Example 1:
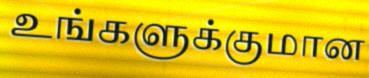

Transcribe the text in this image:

உங்களுக்குமான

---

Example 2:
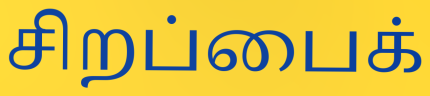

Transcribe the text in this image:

சிறப்பைக்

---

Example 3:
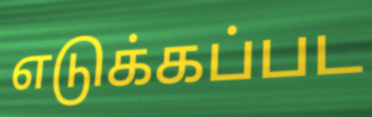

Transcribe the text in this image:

எடுக்கப்பட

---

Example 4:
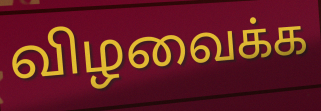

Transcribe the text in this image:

விழவைக்க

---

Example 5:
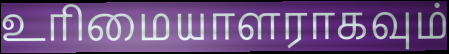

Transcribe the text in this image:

உரிமையாளராகவும்